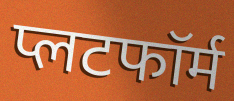
प्लटफॉर्म